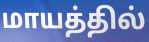
மாயத்தில்